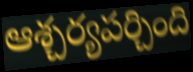
ఆశ్చర్యపర్చింది